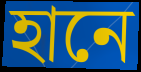
হানে